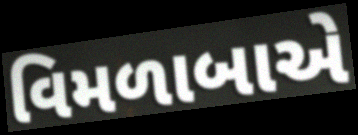
વિમળાબાએ